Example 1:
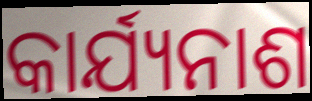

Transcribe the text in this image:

କାର୍ଯ୍ୟନାଶ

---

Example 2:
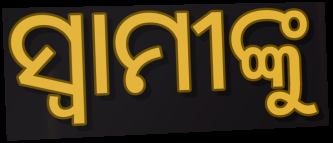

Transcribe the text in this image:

ସ୍ବାମୀଙ୍କୁ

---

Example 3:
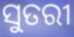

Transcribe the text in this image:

ସୁତରୀ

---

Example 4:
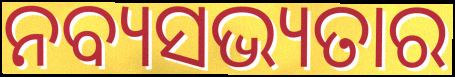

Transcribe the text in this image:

ନବ୍ୟସଭ୍ୟତାର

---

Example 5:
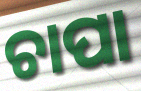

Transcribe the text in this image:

ଚାପା